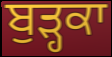
ਬੁੜ੍ਹਕਾ